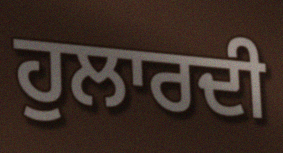
ਹੁਲਾਰਦੀ